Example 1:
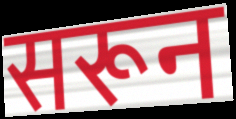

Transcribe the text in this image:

सरून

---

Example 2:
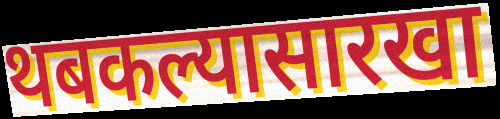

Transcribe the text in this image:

थबकल्यासारखा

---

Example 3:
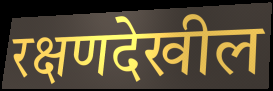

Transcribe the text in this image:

रक्षणदेखील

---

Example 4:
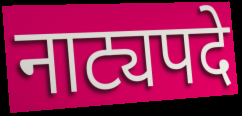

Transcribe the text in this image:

नाट्यपदे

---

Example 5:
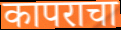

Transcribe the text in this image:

कापराचा